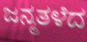
ಜನ್ಮತಳೆದ